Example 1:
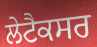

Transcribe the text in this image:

ਲੇਟੈਕਸਰ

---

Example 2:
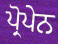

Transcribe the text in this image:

ਪ੍ਰੋਪੇਨ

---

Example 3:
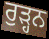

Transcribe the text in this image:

ਰੁੜ੍ਹਨ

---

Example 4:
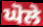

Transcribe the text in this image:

ਘੋਲੇ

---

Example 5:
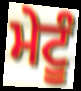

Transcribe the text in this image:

ਮੇਟੂੰ